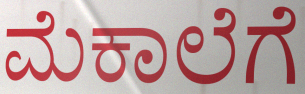
ಮೆಕಾಲೆಗೆ